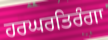
ਹਰਘਰਤਿਰੰਗਾ